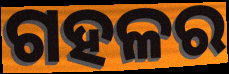
ଗହଳର